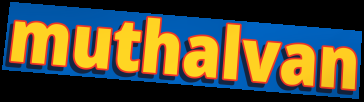
muthalvan